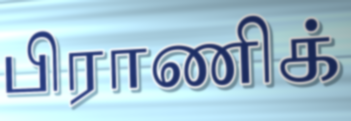
பிராணிக்